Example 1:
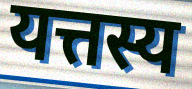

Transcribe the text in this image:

यत्तस्य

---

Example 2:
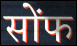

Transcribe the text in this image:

सोंफ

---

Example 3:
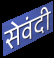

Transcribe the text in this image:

सेवंदी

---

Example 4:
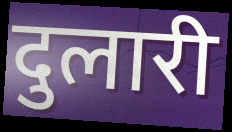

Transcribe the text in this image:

दुलारी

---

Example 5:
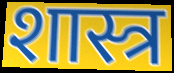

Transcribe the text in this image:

शास्त्र